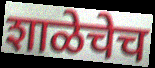
शाळेचेच